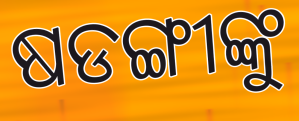
ଷଡଙ୍ଗୀଙ୍କୁ